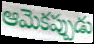
ఆమెకప్పుడు